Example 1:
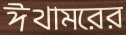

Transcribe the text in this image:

ঈথামরের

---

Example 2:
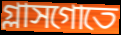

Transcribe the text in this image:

গ্লাসগোতে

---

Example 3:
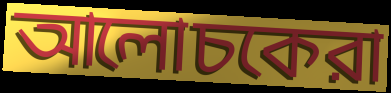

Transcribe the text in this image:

আলোচকেরা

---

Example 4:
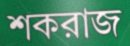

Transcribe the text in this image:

শকরাজ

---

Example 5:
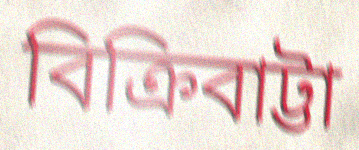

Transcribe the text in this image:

বিক্রিবাট্টা